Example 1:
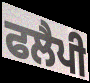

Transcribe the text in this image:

ਫਲੈਪੀ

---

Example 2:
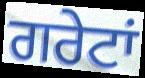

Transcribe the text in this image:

ਗਰੇਟਾਂ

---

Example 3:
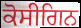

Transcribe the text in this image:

ਕੋਸੀਗਿਨ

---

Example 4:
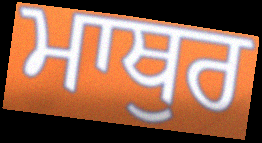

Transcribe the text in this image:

ਮਾਥੁਰ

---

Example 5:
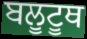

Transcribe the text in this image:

ਬਲੂਟੂਥ